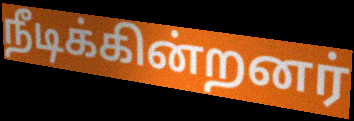
நீடிக்கின்றனர்